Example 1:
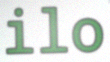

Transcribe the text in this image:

ilo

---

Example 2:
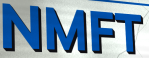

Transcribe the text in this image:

NMFT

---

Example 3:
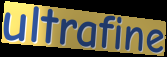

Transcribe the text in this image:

ultrafine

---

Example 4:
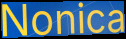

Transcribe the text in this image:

Nonica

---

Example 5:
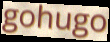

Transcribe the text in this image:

gohugo